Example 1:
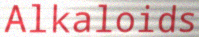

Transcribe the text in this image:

Alkaloids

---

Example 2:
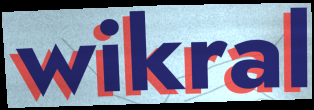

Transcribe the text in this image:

wikral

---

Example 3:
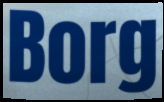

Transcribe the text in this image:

Borg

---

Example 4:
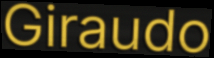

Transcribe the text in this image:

Giraudo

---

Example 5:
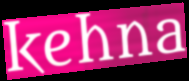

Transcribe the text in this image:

kehna